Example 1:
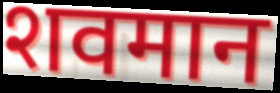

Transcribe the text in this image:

शवमान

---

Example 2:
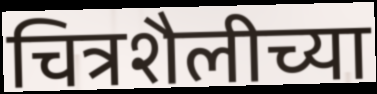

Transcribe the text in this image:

चित्रशैलीच्या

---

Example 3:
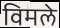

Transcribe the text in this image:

विमले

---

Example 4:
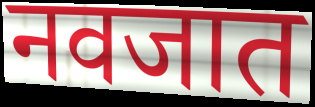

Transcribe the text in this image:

नवजात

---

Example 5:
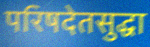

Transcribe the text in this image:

परिषदेतसुद्धा